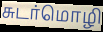
சுடர்மொழி